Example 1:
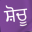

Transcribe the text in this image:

ਸ਼ੋਚੂ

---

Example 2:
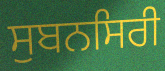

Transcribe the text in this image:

ਸੁਬਨਸਿਰੀ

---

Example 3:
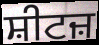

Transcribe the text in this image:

ਸ਼ੀਟਜ਼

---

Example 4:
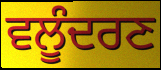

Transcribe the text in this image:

ਵਲੂੰਦਰਣ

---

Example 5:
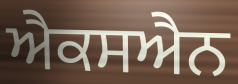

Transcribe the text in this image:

ਐਕਸਐਨ